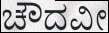
ಚೌದವೀ